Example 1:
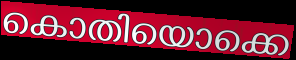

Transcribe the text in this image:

കൊതിയൊക്കെ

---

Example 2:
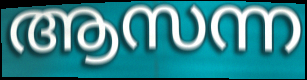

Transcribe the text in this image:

ആസന്ന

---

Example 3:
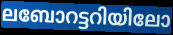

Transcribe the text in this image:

ലബോറട്ടറിയിലോ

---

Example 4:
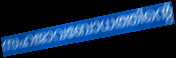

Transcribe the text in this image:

സഹജാവബോധത്തിന്റെ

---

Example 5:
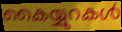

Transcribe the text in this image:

കൈയ്യുറകൾ